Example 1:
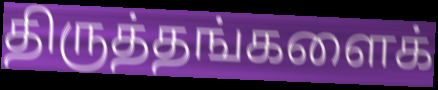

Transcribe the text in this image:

திருத்தங்களைக்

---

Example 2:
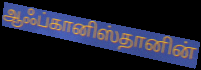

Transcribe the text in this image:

ஆஃப்கானிஸ்தானின்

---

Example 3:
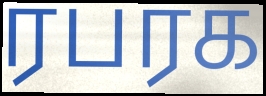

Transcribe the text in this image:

ரபரக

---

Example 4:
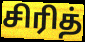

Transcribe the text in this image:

சிரித்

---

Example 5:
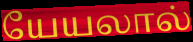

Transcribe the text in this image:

யேயலால்